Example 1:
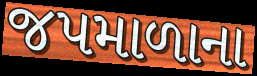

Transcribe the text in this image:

જપમાળાના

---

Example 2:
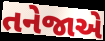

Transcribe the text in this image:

તનેજાએ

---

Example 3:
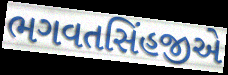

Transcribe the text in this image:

ભગવતસિંહજીએ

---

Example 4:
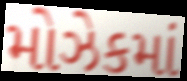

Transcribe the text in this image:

મોઝેકમાં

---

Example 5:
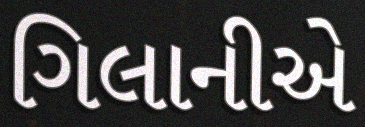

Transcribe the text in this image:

ગિલાનીએ